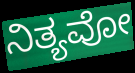
ನಿತ್ಯವೋ